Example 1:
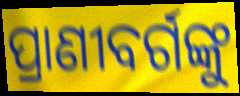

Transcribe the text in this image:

ପ୍ରାଣୀବର୍ଗଙ୍କୁ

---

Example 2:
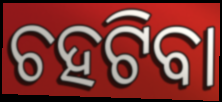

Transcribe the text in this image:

ଚହଟିବା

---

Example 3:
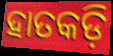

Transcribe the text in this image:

ହାତକଡ଼ି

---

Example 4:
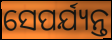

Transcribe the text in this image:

ସେପର୍ଯ୍ୟନ୍ତ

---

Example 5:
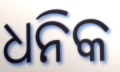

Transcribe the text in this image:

ଧନିକ